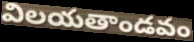
విలయతాండవం